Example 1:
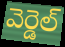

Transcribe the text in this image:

వెర్డెల్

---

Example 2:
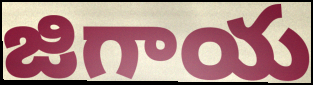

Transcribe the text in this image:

జిగాయ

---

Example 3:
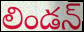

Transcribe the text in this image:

లిండన్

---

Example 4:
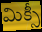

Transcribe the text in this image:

మిక్సీ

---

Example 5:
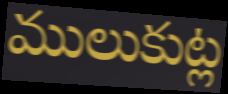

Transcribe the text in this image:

ములుకుట్ల